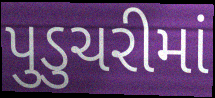
પુડુચરીમાં